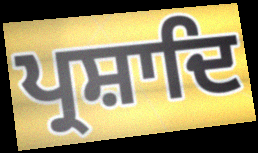
ਪ੍ਰਸ਼ਾਦਿ